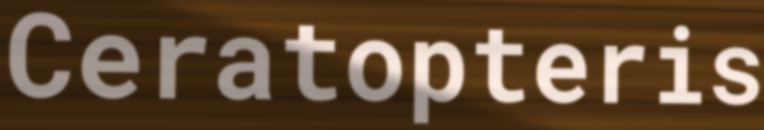
Ceratopteris